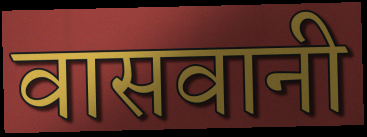
वासवानी